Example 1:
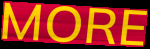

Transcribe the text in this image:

MORE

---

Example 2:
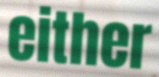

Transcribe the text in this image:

either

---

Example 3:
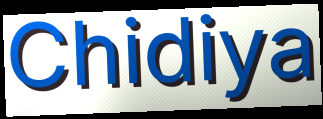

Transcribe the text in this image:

Chidiya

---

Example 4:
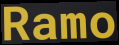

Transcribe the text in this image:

Ramo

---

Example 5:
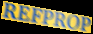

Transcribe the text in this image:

REFPROP